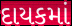
દાયકમાં